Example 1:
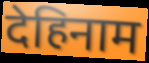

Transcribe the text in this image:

देहिनाम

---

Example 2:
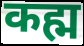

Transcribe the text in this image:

कह्म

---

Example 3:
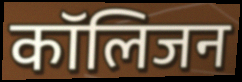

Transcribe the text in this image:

कॉलिजन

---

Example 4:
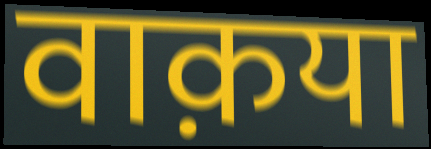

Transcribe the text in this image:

वाक़या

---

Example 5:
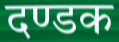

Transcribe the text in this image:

दण्डक